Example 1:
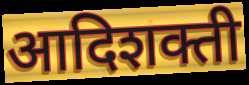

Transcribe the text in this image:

आदिशक्ती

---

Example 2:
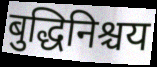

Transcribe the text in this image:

बुद्धिनिश्चय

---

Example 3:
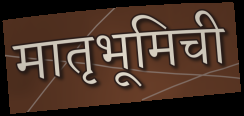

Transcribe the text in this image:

मातृभूमिची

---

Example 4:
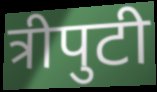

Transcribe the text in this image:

त्रीपुटी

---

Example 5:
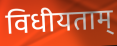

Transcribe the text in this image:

विधीयताम्